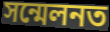
সন্মেলনত